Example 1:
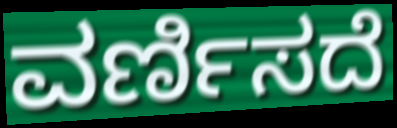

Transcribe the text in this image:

ವರ್ಣಿಸದೆ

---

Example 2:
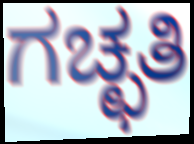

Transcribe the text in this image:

ಗಚ್ಛತಿ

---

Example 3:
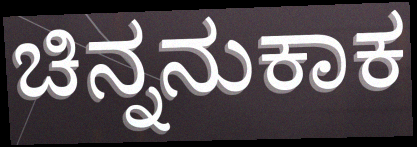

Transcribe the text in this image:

ಚಿನ್ನನುಕಾಕ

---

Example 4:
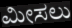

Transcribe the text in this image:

ಮೀಸಲು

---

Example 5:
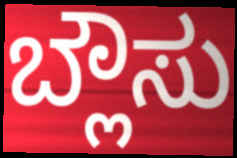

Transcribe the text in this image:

ಬ್ಲೌಸು